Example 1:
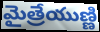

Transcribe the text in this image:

మైత్రేయుణ్ణి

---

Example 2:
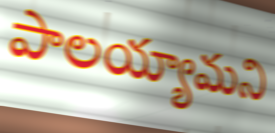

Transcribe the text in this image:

పాలయ్యామని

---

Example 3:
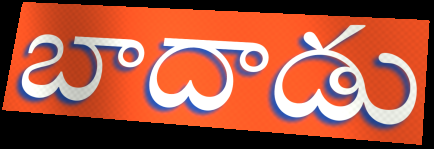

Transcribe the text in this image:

బాదాడు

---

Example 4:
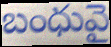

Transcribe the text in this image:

బంధువై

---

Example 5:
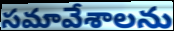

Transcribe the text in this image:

సమావేశాలను